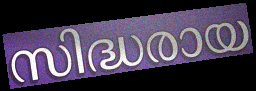
സിദ്ധരായ